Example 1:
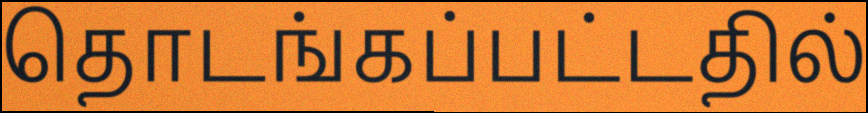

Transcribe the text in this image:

தொடங்கப்பட்டதில்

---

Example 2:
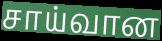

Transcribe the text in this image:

சாய்வான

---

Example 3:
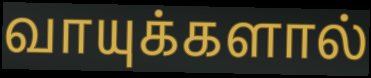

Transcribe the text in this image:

வாயுக்களால்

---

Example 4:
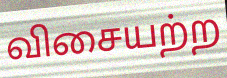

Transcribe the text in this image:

விசையற்ற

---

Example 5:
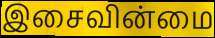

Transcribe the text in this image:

இசைவின்மை